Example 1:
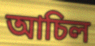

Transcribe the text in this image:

আচিল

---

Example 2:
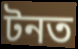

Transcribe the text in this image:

টনত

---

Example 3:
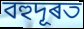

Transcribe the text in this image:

বহুদূৰত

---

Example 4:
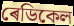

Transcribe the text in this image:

ৰেডিকেল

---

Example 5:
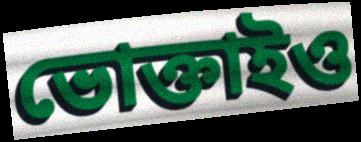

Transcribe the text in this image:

ভোক্তাইও